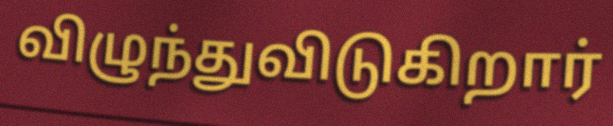
விழுந்துவிடுகிறார்